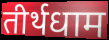
तीर्थधाम